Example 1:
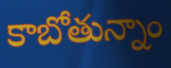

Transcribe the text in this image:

కాబోతున్నాం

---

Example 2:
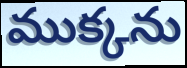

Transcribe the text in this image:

ముక్కను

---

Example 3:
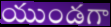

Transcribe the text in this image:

యుండగా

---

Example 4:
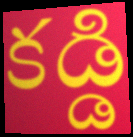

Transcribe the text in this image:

కడ్డి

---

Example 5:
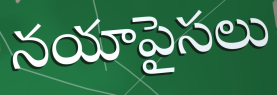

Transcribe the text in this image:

నయాపైసలు